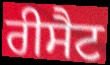
ਰੀਸੈਟ